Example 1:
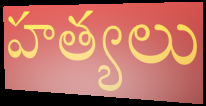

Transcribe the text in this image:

హత్యలు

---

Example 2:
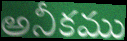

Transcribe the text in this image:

అనీకము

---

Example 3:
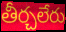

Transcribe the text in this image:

తీర్చలేరు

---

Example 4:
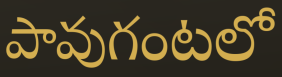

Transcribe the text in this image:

పావుగంటలో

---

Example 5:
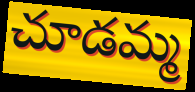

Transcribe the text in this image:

చూడమ్మ